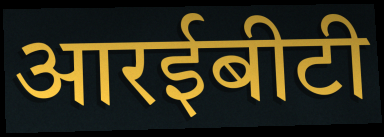
आरईबीटी